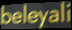
beleyali